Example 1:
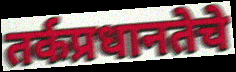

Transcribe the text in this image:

तर्कप्रधानतेचे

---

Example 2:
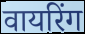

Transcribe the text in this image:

वायरिंग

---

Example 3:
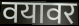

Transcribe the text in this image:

वयावर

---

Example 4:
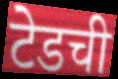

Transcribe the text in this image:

टेडची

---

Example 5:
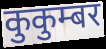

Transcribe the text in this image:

कुकुम्बर